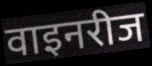
वाइनरीज